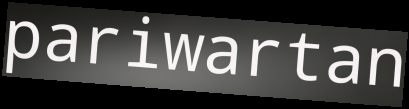
pariwartan